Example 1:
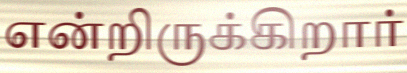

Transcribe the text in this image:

என்றிருக்கிறார்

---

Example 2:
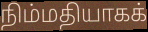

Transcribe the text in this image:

நிம்மதியாகக்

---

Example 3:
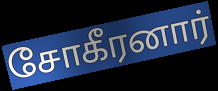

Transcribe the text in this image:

சோகீரனார்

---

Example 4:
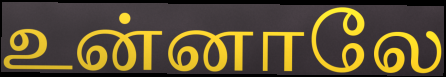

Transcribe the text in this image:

உன்னாலே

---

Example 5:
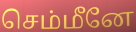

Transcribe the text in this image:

செம்மீனே